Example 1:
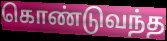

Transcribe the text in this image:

கொண்டுவந்த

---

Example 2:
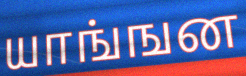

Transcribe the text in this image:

யாங்ஙன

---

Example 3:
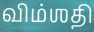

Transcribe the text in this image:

விம்ஶதி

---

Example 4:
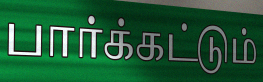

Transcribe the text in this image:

பார்க்கட்டும்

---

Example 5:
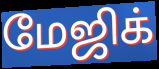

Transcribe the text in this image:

மேஜிக்